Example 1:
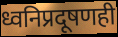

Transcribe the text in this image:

ध्वनिप्रदूषणही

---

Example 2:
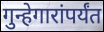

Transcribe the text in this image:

गुन्हेगारांपर्यंत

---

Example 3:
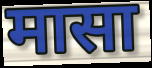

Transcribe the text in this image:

मासा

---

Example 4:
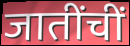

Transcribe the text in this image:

जातींचीं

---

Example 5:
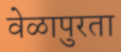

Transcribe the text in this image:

वेळापुरता